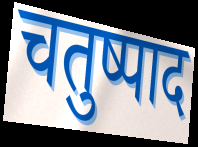
चतुष्पाद